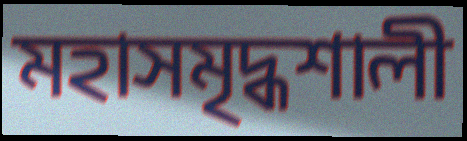
মহাসমৃদ্ধশালী